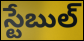
స్టేబుల్